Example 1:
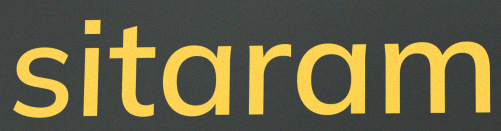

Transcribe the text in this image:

sitaram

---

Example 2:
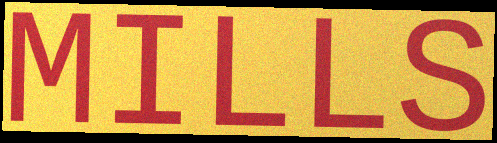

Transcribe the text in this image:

MILLS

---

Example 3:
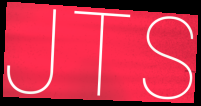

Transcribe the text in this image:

JTS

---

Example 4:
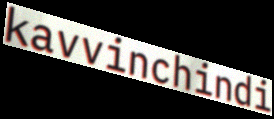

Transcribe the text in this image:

kavvinchindi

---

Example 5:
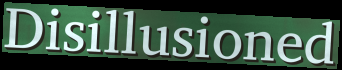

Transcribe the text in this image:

Disillusioned